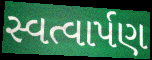
સ્વત્વાર્પણ